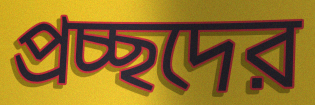
প্রচ্ছদের